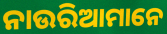
ନାଉରିଆମାନେ